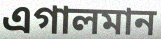
এগালমান